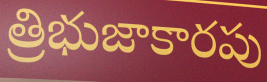
త్రిభుజాకారపు